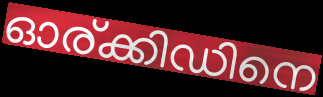
ഓര്ക്കിഡിനെ